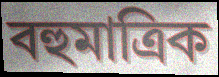
বহুমাত্রিক